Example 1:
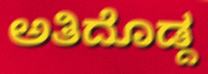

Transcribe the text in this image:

ಅತಿದೊಡ್ದ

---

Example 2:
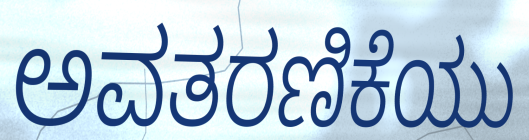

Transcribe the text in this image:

ಅವತರಣಿಕೆಯು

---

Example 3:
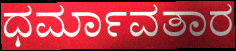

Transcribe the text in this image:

ಧರ್ಮಾವತಾರ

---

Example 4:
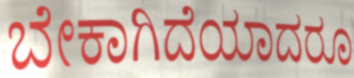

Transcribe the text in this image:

ಬೇಕಾಗಿದೆಯಾದರೂ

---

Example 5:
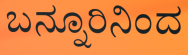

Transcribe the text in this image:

ಬನ್ನೂರಿನಿಂದ